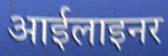
आईलाइनर